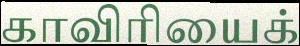
காவிரியைக்